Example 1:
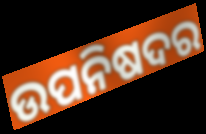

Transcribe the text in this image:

ଉପନିଷଦର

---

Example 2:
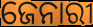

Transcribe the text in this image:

ଜେନାରୀ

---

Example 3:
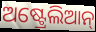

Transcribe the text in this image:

ଅଷ୍ଟ୍ରେଲିଆନ୍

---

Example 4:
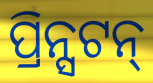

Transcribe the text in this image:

ପ୍ରିନ୍ସଟନ୍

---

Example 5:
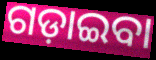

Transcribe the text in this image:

ଗଡ଼ାଇବା